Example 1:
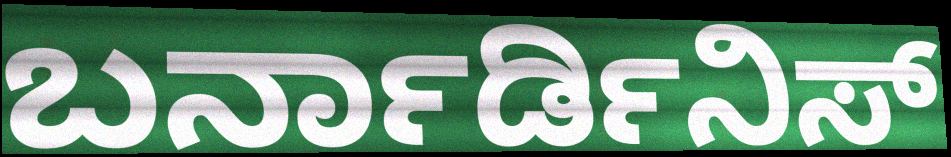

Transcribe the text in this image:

ಬರ್ನಾರ್ಡಿನಿಸ್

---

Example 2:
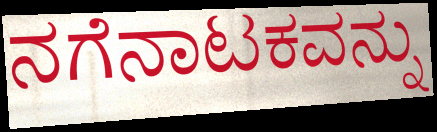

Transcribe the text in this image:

ನಗೆನಾಟಕವನ್ನು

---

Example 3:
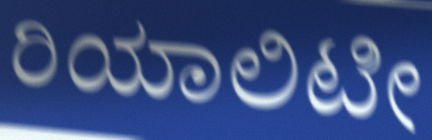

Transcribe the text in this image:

ರಿಯಾಲಿಟೀ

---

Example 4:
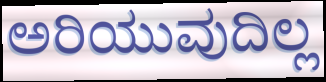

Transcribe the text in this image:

ಅರಿಯುವುದಿಲ್ಲ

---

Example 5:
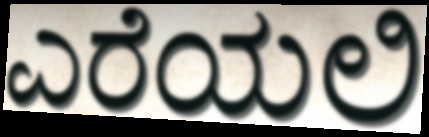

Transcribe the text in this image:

ಎರೆಯಲಿ